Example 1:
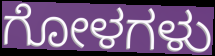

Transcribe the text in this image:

ಗೋಳಗಳು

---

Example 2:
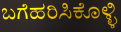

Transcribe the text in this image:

ಬಗೆಹರಿಸಿಕೊಳ್ಳಿ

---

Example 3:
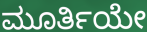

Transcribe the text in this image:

ಮೂರ್ತಿಯೇ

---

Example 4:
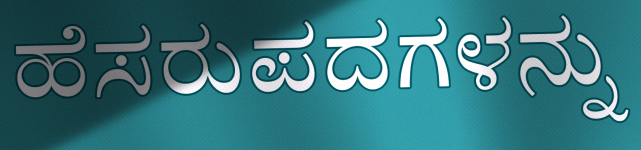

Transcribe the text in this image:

ಹೆಸರುಪದಗಳನ್ನು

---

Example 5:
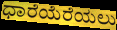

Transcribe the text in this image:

ಧಾರೆಯೆರೆಯಲು